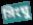
সিংঘু